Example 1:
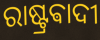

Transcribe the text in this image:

ରାଷ୍ଟ୍ରଵାଦୀ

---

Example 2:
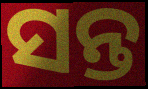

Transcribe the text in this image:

ସନ୍ତ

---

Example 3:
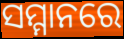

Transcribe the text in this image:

ସମ୍ମାନରେ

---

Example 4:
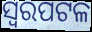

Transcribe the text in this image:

ସ୍ୱରପଟଳ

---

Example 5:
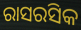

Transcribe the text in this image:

ରାସରସିକ